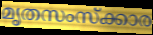
മൃതസംസ്ക്കാര